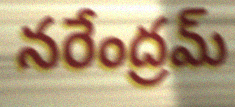
నరేంద్రమ్